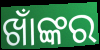
ଖାଁଙ୍କର